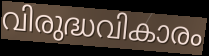
വിരുദ്ധവികാരം